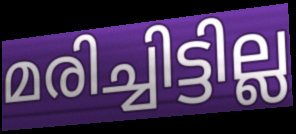
മരിച്ചിട്ടില്ല